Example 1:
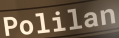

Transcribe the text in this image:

Polilan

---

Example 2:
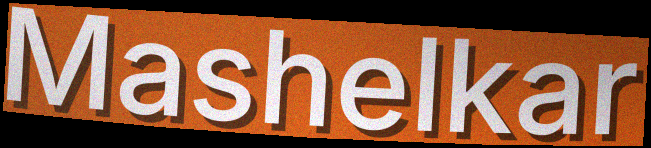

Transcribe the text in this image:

Mashelkar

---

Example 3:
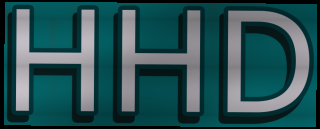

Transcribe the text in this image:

HHD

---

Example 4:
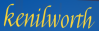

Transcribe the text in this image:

kenilworth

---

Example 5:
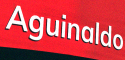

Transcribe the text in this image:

Aguinaldo